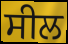
ਸੀਲ